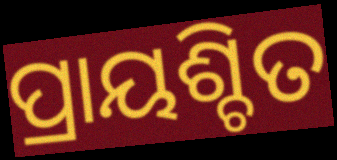
ପ୍ରାୟଶ୍ଚିତ